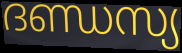
ദണ്ഡസ്യ